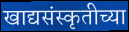
खाद्यसंस्कृतीच्या